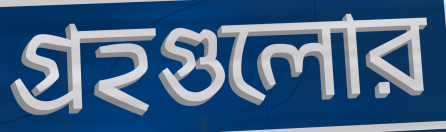
গ্রহগুলোর